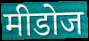
मीडोज